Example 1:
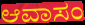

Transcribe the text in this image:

ಆವಾಸಂ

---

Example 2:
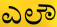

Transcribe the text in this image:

ಎಲೌ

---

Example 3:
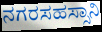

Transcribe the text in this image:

ನಗರಸಹಸ್ಸಾನಿ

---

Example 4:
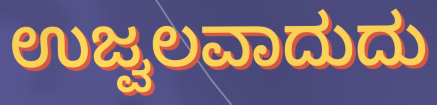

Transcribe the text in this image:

ಉಜ್ವಲವಾದುದು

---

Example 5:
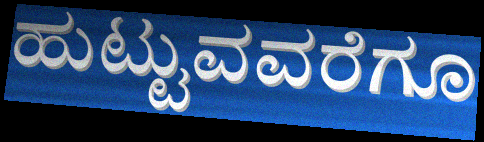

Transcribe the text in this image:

ಹುಟ್ಟುವವರೆಗೂ